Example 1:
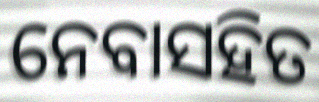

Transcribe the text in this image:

ନେବାସହିତ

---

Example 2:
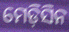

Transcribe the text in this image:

ମେଡ଼ିସିନ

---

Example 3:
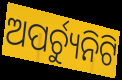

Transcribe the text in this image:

ଅପର୍ଚ୍ୟୁନିଟି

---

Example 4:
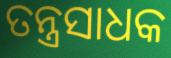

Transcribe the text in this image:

ତନ୍ତ୍ରସାଧକ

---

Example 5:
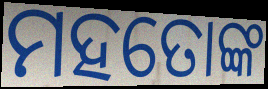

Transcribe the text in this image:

ମହତୋଙ୍କ